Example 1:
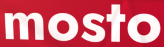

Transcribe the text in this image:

mosto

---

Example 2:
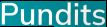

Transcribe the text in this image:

Pundits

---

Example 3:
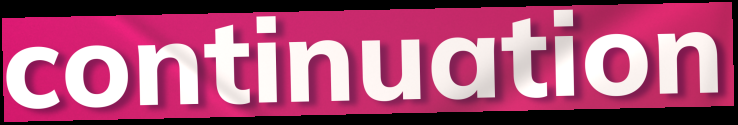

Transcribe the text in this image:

continuation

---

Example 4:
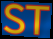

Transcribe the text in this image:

ST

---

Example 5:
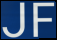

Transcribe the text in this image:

JF